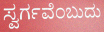
ಸ್ವರ್ಗವೆಂಬುದು